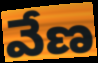
వేణ